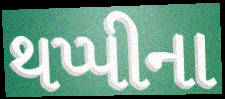
થપ્પીના